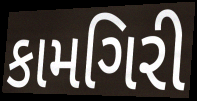
કામગિરી